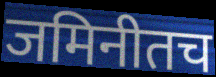
जमिनीतच